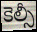
కెల్సీ